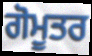
ਗੋਮੂਤਰ